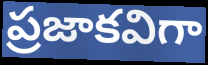
ప్రజాకవిగా